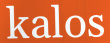
kalos